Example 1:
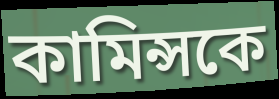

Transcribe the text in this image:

কামিন্সকে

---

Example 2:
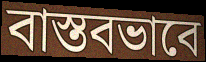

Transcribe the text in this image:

বাস্তবভাবে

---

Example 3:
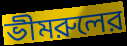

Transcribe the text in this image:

ভীমরুলের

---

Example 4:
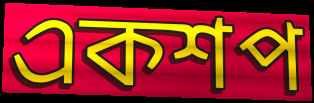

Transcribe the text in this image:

একশপ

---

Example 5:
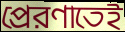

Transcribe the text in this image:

প্রেরণাতেই